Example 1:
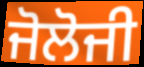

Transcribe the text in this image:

ਜੋਲੋਜੀ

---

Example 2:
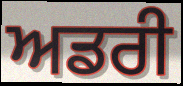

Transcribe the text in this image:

ਅਡਰੀ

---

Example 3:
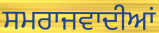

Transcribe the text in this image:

ਸਮਰਾਜਵਾਦੀਆਂ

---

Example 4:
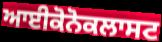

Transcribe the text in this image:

ਆਈਕੋਨੋਕਲਾਸਟ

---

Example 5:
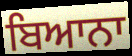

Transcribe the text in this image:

ਬਿਆਨਾ